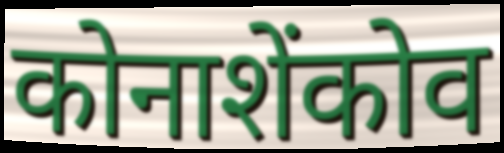
कोनाशेंकोव